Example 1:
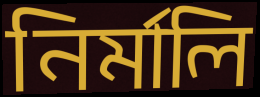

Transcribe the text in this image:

নিৰ্মালি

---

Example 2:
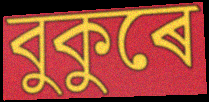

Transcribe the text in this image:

বুকুৰে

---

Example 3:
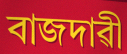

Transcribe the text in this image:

বাজদাৱী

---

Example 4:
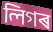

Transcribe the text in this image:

লিগৰ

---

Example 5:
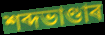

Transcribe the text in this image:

শব্দভাণ্ডাৰ